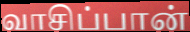
வாசிப்பான்